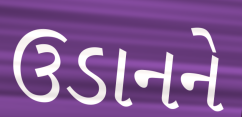
ઉડાનને